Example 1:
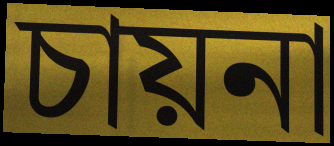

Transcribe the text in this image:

চায়না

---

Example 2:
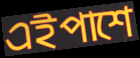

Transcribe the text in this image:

এইপাশে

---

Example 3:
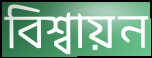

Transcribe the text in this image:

বিশ্বায়ন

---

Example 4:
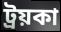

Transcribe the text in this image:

ট্রয়কা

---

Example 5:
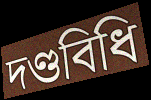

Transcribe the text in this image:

দণ্ডবিধি